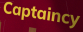
Captaincy